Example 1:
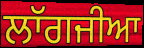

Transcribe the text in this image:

ਲਾੱਗਜੀਆ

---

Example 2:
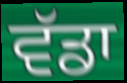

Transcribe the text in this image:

ਵੱਡਾ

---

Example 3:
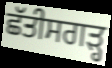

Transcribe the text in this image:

ਛੱਤੀਸਗੜ੍ਹ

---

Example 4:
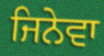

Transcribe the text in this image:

ਜਿਨੇਵਾ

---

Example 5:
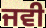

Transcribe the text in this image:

ਜਵੀ